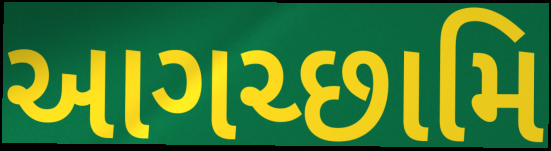
આગચ્છામિ